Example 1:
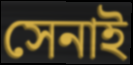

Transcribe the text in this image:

সেনাই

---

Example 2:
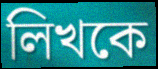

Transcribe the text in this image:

লিখকে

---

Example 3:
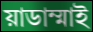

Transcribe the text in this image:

য়াডাম্মাই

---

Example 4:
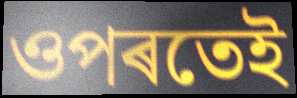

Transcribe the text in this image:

ওপৰতেই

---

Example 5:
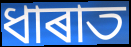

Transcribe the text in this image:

ধাৰাত